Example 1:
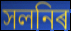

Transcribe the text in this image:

সলনিৰ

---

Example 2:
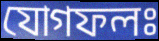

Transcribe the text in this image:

যোগফলঃ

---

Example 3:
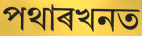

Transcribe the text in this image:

পথাৰখনত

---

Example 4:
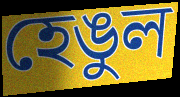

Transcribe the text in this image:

হেঙুল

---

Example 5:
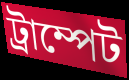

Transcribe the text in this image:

ট্ৰাম্পেট